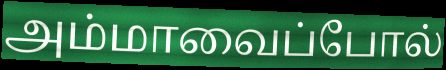
அம்மாவைப்போல்